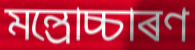
মন্ত্ৰোচ্চাৰণ